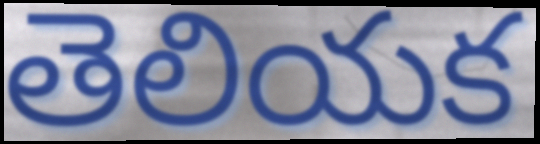
తెలియక